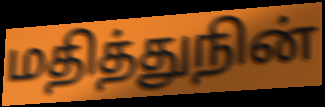
மதித்துநின்